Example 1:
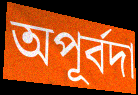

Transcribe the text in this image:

অপূর্বদা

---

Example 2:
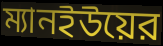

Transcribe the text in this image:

ম্যানইউয়ের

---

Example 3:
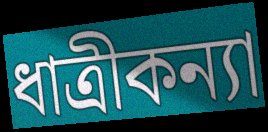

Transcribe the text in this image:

ধাত্রীকন্যা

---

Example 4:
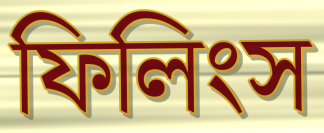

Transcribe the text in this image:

ফিলিংস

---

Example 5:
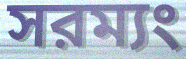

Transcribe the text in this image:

সরম্যং